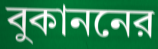
বুকাননের